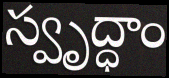
స్వృద్ధాం